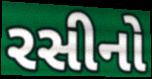
રસીનો